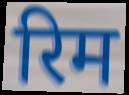
रिम